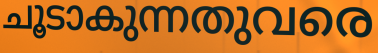
ചൂടാകുന്നതുവരെ